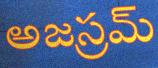
అజస్రమ్